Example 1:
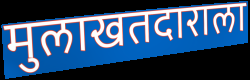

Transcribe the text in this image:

मुलाखतदाराला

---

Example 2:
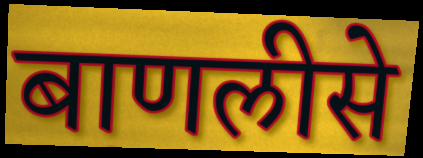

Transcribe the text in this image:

बाणलीसे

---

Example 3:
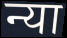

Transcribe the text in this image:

न्या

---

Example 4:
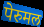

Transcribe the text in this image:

पेरुमल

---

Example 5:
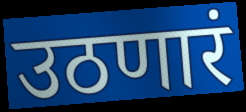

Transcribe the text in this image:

उठणारं